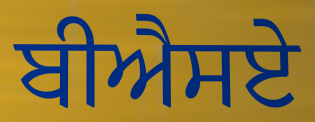
ਬੀਐਸਏ